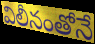
విలీనంతోనే